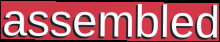
assembled